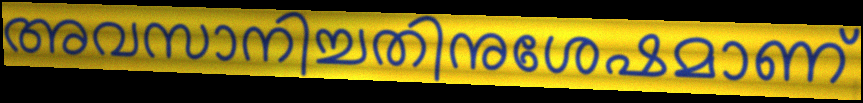
അവസാനിച്ചതിനുശേഷമാണ്